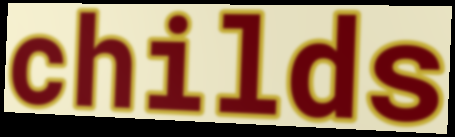
childs